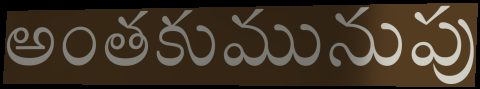
అంతకుమునుపు